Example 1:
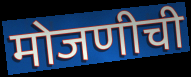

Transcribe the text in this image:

मोजणीची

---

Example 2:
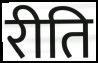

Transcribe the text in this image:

रीति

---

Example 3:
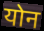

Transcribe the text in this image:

योन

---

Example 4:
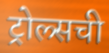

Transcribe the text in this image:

ट्रोल्सची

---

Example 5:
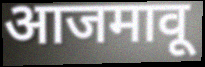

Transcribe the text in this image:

आजमावू